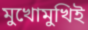
মুখোমুখিই